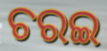
ଚରଇ